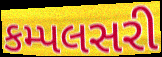
કમ્પલસરી